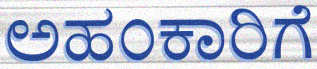
ಅಹಂಕಾರಿಗೆ